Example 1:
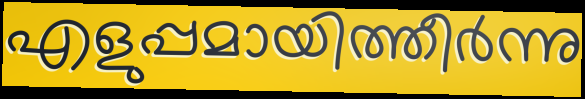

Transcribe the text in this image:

എളുപ്പമായിത്തീർന്നു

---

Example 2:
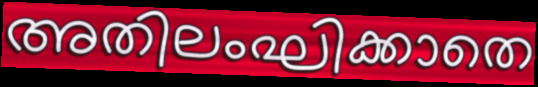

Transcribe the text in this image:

അതിലംഘിക്കാതെ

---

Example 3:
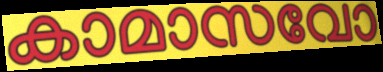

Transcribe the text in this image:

കാമാസവോ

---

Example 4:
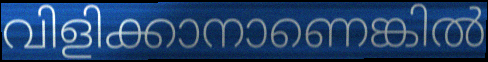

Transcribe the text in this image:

വിളിക്കാനാണെങ്കിൽ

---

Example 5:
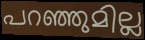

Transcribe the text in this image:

പറഞ്ഞുമില്ല